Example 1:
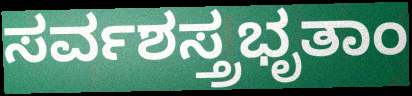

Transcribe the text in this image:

ಸರ್ವಶಸ್ತ್ರಭೃತಾಂ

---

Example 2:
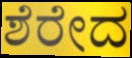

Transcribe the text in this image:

ಶೆರೇದ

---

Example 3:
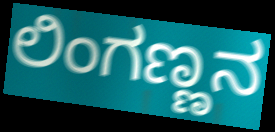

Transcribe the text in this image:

ಲಿಂಗಣ್ಣನ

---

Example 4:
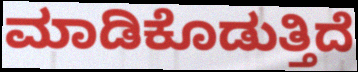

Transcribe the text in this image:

ಮಾಡಿಕೊಡುತ್ತಿದೆ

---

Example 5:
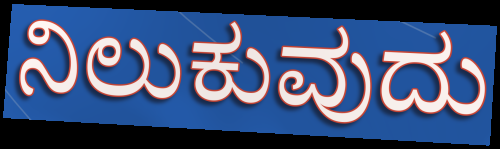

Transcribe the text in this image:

ನಿಲುಕುವುದು